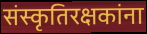
संस्कृतिरक्षकांना